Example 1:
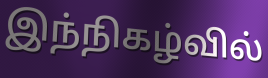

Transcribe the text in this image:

இந்நிகழ்வில்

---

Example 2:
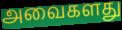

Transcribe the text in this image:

அவைகளது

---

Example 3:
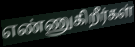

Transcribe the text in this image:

எண்ணுகிறீர்கள்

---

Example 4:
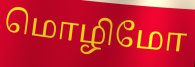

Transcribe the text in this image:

மொழிமோ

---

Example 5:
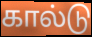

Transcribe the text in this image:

கால்டு